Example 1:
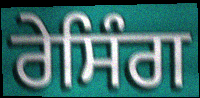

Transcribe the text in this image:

ਰੇਸਿੰਗ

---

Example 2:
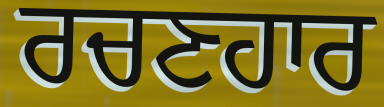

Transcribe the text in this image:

ਰਚਣਹਾਰ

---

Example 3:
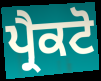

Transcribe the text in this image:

ਪ੍ਰੈਕਟੋ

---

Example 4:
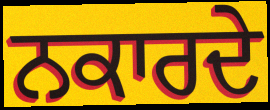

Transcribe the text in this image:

ਨਕਾਰਦੇ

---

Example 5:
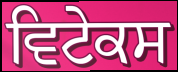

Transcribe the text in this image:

ਵਿਟੇਕਸ